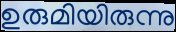
ഉരുമിയിരുന്നു